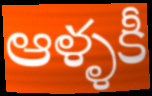
ఆళ్ళకీ